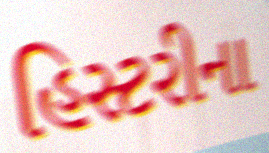
હિસ્ટરીના